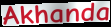
Akhanda